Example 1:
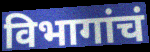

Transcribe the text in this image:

विभागांचं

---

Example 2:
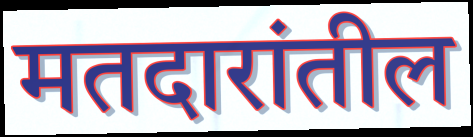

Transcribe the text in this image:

मतदारांतील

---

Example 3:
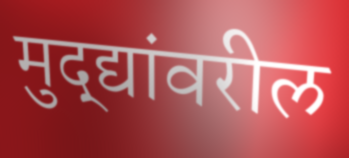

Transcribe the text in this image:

मुद्द्यांवरील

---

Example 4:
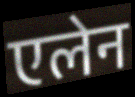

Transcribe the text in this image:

एलेन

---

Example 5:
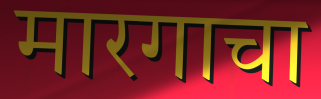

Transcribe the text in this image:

मारगाचा